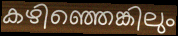
കഴിഞ്ഞെങ്കിലും